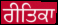
ਰੀਤਿਕਾ